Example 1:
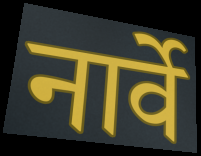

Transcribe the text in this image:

नार्वे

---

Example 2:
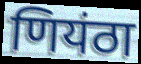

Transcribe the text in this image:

णियंठा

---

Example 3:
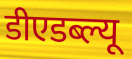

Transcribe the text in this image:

डीएडब्ल्यू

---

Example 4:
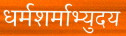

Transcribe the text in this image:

धर्मशर्माभ्युदय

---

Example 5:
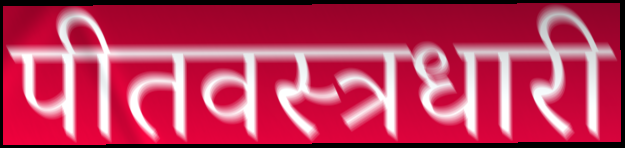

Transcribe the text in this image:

पीतवस्त्रधारी